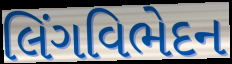
લિંગવિભેદન